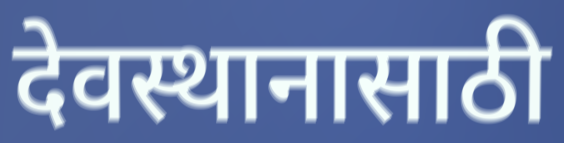
देवस्थानासाठी